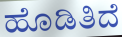
ಹೊಡಿತಿದೆ